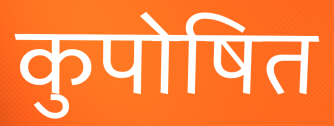
कुपोषित